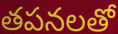
తపనలతో